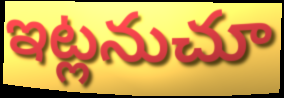
ఇట్లనుచూ